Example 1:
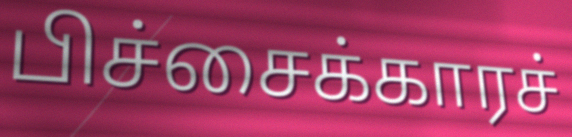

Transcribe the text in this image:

பிச்சைக்காரச்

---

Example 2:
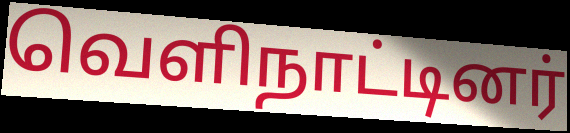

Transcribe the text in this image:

வெளிநாட்டினர்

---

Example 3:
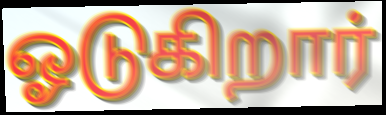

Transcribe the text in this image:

ஓடுகிறார்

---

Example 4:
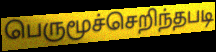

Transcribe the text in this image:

பெருமூச்செறிந்தபடி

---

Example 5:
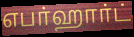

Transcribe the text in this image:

எபர்ஹார்ட்